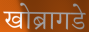
खोब्रागडे